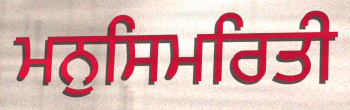
ਮਨੁਸਿਮਰਿਤੀ